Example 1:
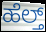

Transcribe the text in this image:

ಹೆಲ್ತ್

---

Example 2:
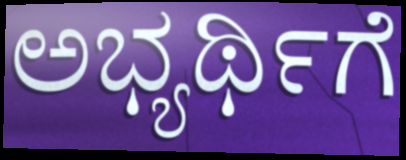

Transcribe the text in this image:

ಅಭ್ಯರ್ಥಿಗೆ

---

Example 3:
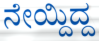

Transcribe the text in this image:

ನೇಯ್ದಿದ್ದ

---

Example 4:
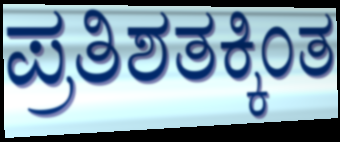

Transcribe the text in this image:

ಪ್ರತಿಶತಕ್ಕಿಂತ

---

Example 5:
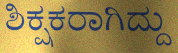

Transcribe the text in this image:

ಶಿಕ್ಷಕರಾಗಿದ್ದು